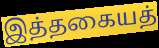
இத்தகையத்